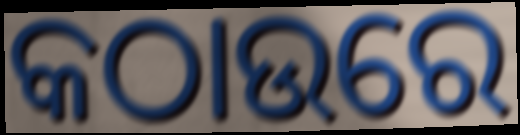
କଠାଉରେ